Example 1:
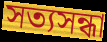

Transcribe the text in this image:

সত্যসন্ধা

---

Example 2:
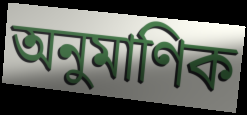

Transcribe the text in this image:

অনুমাণিক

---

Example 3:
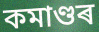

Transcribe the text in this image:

কমাণ্ডৰ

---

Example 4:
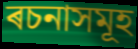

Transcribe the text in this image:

ৰচনাসমূহ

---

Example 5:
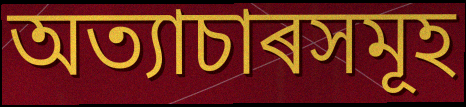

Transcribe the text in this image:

অত্যাচাৰসমূহ